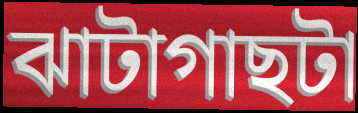
ঝাটাগাছটা